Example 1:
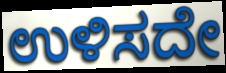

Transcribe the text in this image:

ಉಳಿಸದೇ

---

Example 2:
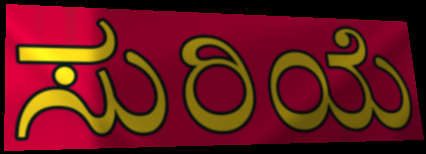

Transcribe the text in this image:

ಸುರಿಯೆ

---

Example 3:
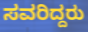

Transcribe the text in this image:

ಸವರಿದ್ದರು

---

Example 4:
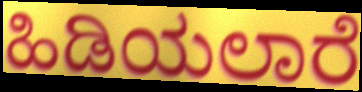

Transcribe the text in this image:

ಹಿಡಿಯಲಾರೆ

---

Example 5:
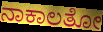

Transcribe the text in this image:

ನಾಕಾಲತೋ